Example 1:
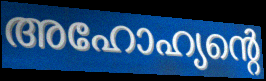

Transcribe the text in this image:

അഹോഹ്യന്റെ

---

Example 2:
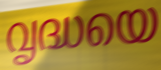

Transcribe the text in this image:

വൃദ്ധയെ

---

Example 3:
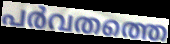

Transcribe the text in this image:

പർവതത്തെ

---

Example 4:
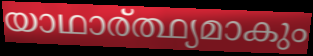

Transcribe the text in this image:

യാഥാര്ത്ഥ്യമാകും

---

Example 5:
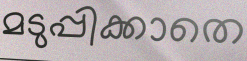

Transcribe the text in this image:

മടുപ്പിക്കാതെ